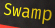
Swamp